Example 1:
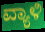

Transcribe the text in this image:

ವ್ಯಾಳಿ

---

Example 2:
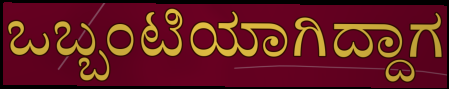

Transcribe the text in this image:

ಒಬ್ಬಂಟಿಯಾಗಿದ್ದಾಗ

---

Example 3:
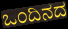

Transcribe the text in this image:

ಒಂದಿನದ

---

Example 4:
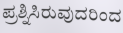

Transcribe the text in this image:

ಪ್ರಶ್ನಿಸಿರುವುದರಿಂದ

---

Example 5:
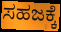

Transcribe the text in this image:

ಸಹಜಕ್ಕೆ